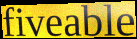
fiveable